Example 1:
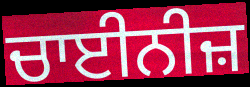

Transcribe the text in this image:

ਚਾਈਨੀਜ਼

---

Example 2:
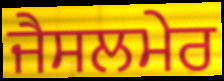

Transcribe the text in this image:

ਜੈਸਲਮੇਰ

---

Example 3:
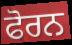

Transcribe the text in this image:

ਫੋਰਨ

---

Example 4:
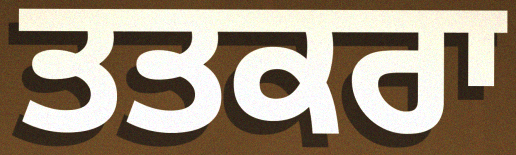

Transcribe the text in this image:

ਤਤਕਰਾ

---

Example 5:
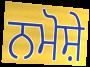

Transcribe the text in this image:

ਨਮੋਸ਼ੇ